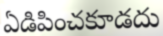
ఏడిపించకూడదు